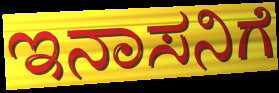
ಇನಾಸನಿಗೆ